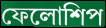
ফেলোশিপ